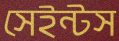
সেইন্টস